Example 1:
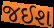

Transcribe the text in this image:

જઈશ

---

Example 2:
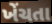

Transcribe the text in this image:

ખેંચતા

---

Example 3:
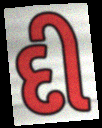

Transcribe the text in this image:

દી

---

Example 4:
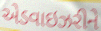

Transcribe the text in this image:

એડવાઇઝરીને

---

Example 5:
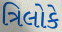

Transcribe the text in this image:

ત્રિલોકે